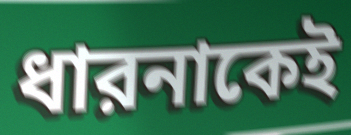
ধারনাকেই